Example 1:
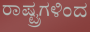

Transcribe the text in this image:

ರಾಷ್ಟ್ರಗಳಿಂದ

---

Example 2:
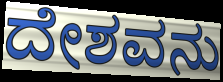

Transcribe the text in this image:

ದೇಶವನು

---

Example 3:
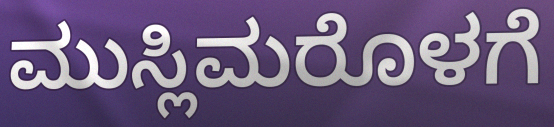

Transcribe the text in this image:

ಮುಸ್ಲಿಮರೊಳಗೆ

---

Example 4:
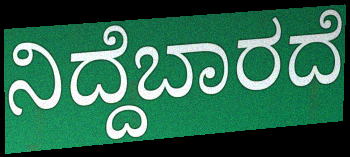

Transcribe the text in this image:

ನಿದ್ದೆಬಾರದೆ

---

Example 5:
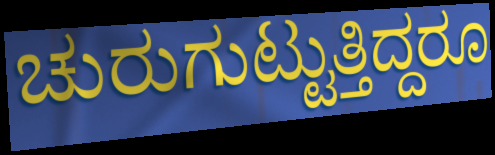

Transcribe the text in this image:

ಚುರುಗುಟ್ಟುತ್ತಿದ್ದರೂ